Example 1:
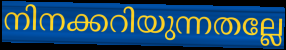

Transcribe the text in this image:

നിനക്കറിയുന്നതല്ലേ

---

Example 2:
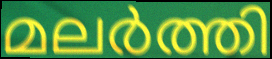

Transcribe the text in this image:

മലർത്തി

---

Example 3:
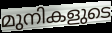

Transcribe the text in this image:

മുനികളുടെ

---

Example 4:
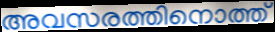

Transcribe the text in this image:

അവസരത്തിനൊത്ത്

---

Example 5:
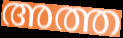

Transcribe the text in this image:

അത്ത